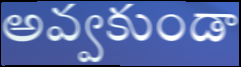
అవ్వకుండా